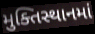
મુક્તિસ્થાનમાં